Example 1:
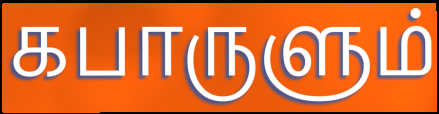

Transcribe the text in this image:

கபாருளும்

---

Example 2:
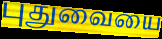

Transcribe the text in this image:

புதுவையை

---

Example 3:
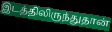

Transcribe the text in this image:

இடத்திலிருந்துதான்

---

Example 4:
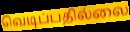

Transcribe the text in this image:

வெடிப்பதில்லை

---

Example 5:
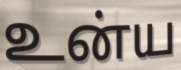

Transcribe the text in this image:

உன்ய